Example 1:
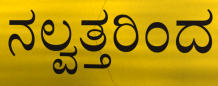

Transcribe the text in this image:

ನಲ್ವತ್ತರಿಂದ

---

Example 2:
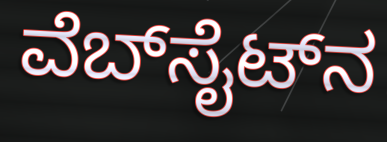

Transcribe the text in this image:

ವೆಬ್‍ಸೈಟ್‍ನ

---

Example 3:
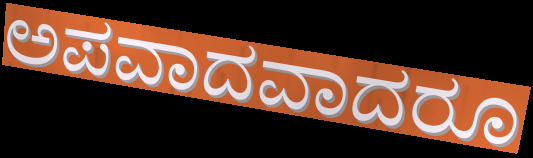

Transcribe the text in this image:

ಅಪವಾದವಾದರೂ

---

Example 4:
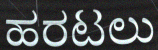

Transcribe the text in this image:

ಹರಟಲು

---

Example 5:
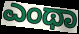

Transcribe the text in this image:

ಎಂಥಾ